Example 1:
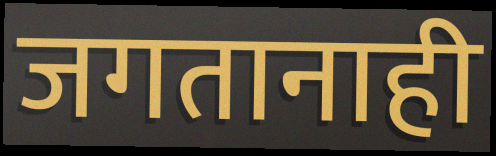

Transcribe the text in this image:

जगतानाही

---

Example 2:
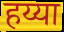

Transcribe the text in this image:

हय्या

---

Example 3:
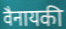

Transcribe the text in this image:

वैनायकी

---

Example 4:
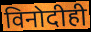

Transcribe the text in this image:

विनोदीही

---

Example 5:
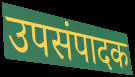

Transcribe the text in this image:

उपसंपादक